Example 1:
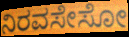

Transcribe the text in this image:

ನಿರವಸೇಸೋ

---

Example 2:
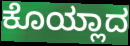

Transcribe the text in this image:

ಕೊಯ್ಲಾದ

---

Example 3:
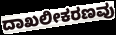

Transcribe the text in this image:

ದಾಖಲೀಕರಣವು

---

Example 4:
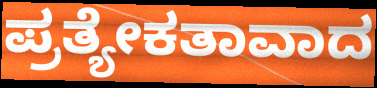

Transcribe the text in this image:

ಪ್ರತ್ಯೇಕತಾವಾದ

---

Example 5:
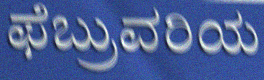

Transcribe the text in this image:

ಫೆಬ್ರುವರಿಯ